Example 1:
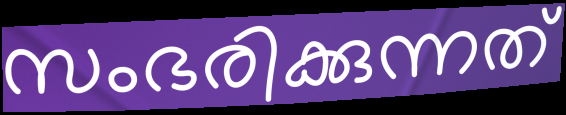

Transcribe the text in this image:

സംഭരിക്കുന്നത്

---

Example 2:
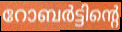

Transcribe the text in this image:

റോബർട്ടിന്റെ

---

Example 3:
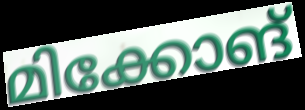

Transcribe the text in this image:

മിക്കോങ്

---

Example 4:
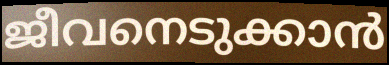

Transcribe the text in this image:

ജീവനെടുക്കാൻ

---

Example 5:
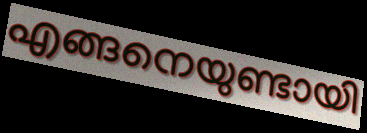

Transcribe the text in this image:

എങ്ങനെയുണ്ടായി